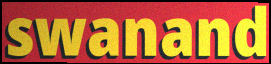
swanand